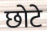
छोटे